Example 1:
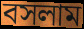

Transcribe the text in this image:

বসলাম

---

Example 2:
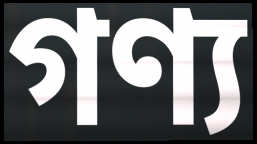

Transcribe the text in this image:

গণ্য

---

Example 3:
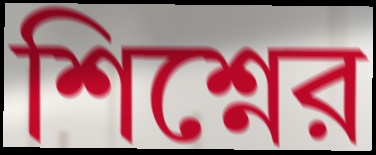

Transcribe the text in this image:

শিশ্নের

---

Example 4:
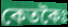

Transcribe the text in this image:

কেতকৈঃ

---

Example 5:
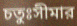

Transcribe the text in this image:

চতুঃসীমার